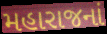
મહારાજનાં